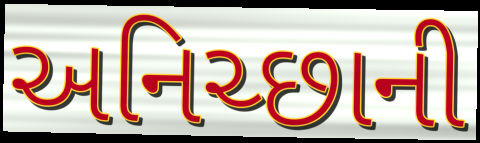
અનિચ્છાની